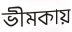
ভীমকায়